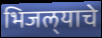
भिजल्याचे